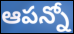
ఆపన్నో